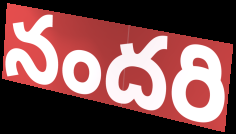
నందరి